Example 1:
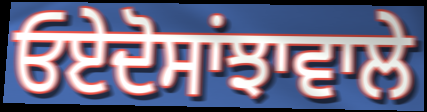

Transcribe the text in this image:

ਓਏਦੋਸਾਂਝਾਵਾਲੇ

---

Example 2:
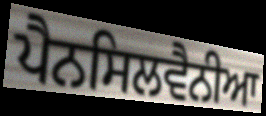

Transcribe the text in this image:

ਪੈਨਸਿਲਵੈਨੀਆ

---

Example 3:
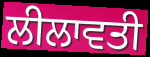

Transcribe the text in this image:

ਲੀਲਾਵਤੀ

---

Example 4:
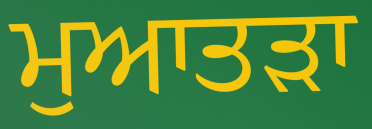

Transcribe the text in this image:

ਮੁਆਤੜਾ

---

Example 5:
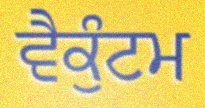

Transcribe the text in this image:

ਵੈਕੁੰਟਮ